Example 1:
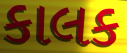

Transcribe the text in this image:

કાલક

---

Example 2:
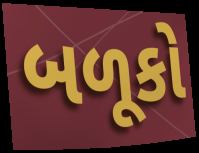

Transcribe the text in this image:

બળૂકો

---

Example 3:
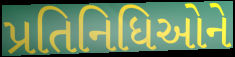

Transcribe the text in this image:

પ્રતિનિધિઓને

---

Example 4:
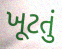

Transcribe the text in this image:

ખૂટતું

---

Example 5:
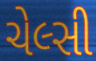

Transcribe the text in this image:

ચેલ્સી